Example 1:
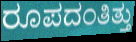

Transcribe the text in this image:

ರೂಪದಂತಿತ್ತು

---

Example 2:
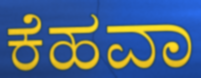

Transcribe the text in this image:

ಕೆಹವಾ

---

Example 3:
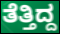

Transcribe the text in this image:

ತೆತ್ತಿದ್ದ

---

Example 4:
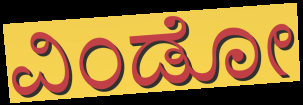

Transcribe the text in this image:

ವಿಂಡೋ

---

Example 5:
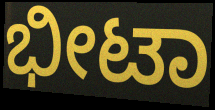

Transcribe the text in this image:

ಭೀಟಾ